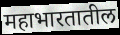
महाभारतातील